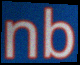
nb